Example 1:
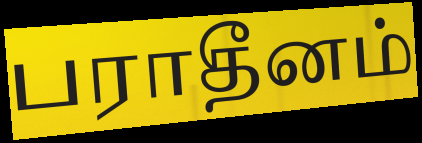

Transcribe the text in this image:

பராதீனம்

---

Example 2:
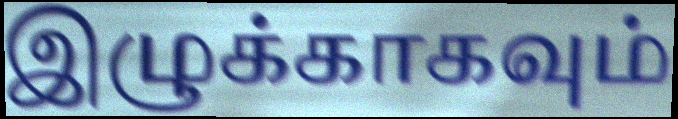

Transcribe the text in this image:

இழுக்காகவும்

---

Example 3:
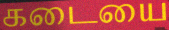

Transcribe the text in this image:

கடையை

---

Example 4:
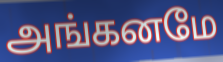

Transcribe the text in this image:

அங்கனமே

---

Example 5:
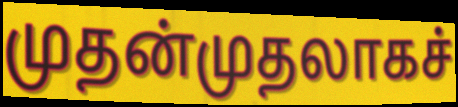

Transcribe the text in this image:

முதன்முதலாகச்